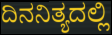
ದಿನನಿತ್ಯದಲ್ಲಿ